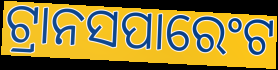
ଟ୍ରାନସପାରେଂଟ